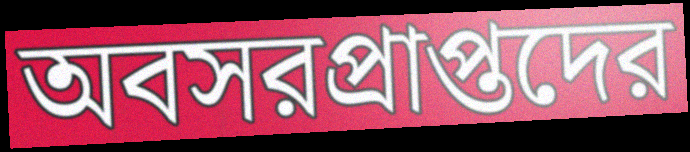
অবসরপ্রাপ্তদের